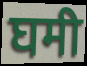
घमी